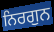
ਨਿਰਗੁਨ